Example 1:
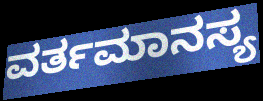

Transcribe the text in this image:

ವರ್ತಮಾನಸ್ಯ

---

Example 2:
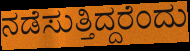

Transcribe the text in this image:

ನಡೆಸುತ್ತಿದ್ದರೆಂದು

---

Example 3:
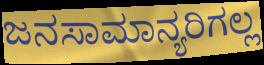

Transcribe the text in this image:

ಜನಸಾಮಾನ್ಯರಿಗಲ್ಲ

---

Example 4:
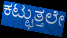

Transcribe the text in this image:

ಕಟ್ಟುತ್ತಲೇ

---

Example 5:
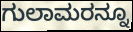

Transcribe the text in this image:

ಗುಲಾಮರನ್ನೂ